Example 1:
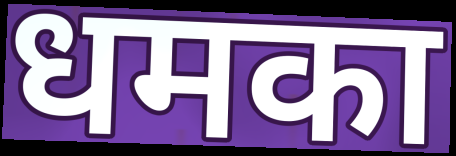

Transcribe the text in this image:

धमका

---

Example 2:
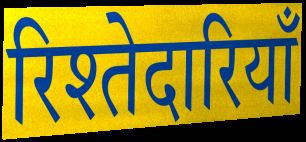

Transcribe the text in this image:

रिश्तेदारियाँ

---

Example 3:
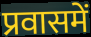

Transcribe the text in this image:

प्रवासमें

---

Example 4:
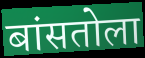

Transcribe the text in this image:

बांसतोला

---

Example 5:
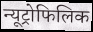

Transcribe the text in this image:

न्यूट्रोफिलिक